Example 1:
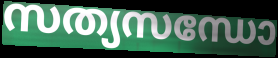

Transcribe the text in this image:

സത്യസന്ധോ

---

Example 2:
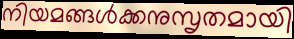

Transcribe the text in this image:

നിയമങ്ങൾക്കനുസൃതമായി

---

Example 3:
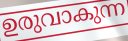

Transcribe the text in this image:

ഉരുവാകുന്ന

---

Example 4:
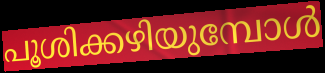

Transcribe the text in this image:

പൂശിക്കഴിയുമ്പോൾ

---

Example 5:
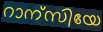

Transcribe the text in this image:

റാന്സിയേ